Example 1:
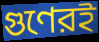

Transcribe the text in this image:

গুণেরই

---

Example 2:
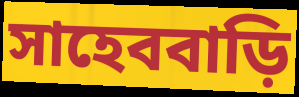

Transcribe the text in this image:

সাহেববাড়ি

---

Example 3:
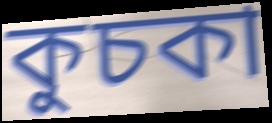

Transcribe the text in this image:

কুচকা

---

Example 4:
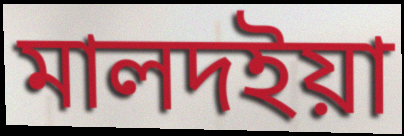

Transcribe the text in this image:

মালদইয়া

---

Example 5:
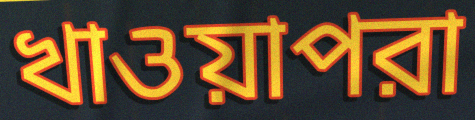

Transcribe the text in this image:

খাওয়াপরা